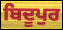
ਬਿਦੂਪੁਰ